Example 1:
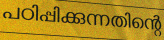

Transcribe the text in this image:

പഠിപ്പിക്കുന്നതിന്റെ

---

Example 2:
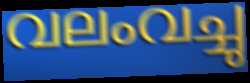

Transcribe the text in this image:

വലംവച്ചു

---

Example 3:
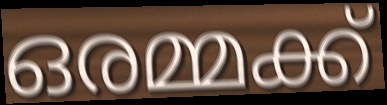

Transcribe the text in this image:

ഒരമ്മക്ക്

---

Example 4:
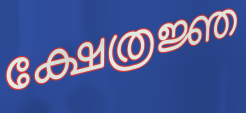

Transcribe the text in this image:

ക്ഷേത്രജ്ഞ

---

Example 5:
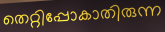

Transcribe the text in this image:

തെറ്റിപ്പോകാതിരുന്ന